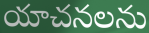
యాచనలను